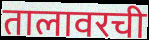
तालावरची